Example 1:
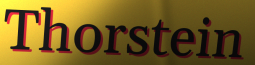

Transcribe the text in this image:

Thorstein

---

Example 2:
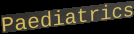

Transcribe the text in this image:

Paediatrics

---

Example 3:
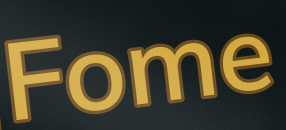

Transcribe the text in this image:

Fome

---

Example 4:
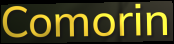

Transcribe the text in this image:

Comorin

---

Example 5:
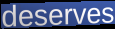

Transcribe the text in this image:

deserves